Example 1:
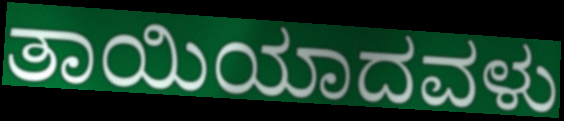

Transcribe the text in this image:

ತಾಯಿಯಾದವಳು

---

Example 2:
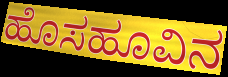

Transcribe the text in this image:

ಹೊಸಹೂವಿನ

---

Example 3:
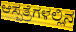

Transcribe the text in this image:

ಆಸ್ಪತ್ರೆಗಳಲ್ಲಿನ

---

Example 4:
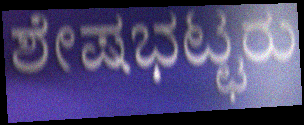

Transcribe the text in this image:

ಶೇಷಭಟ್ಟರು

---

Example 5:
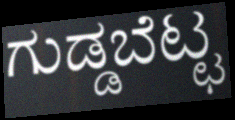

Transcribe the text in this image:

ಗುಡ್ಡಬೆಟ್ಟ